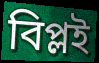
বিপ্লই